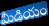
మీడియం